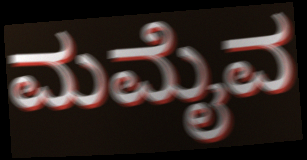
ಮಮೈವ